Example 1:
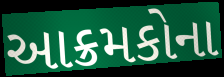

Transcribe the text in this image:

આક્રમકોના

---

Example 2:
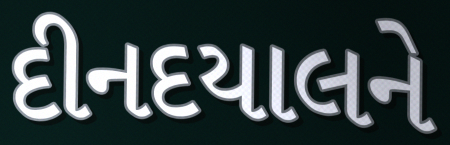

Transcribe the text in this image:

દીનદયાલને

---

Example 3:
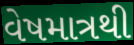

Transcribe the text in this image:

વેષમાત્રથી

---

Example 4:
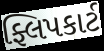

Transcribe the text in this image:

ફ્લિપકાર્ટ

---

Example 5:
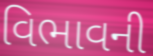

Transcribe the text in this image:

વિભાવની